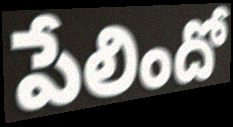
పేలిందో